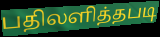
பதிலளித்தபடி